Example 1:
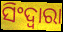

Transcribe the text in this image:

ସିଂଦ୍ୱାରା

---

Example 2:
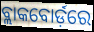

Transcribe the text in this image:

ବ୍ଲାକବୋର୍ଡ଼ରେ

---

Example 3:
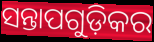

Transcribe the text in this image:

ସନ୍ତାପଗୁଡ଼ିକର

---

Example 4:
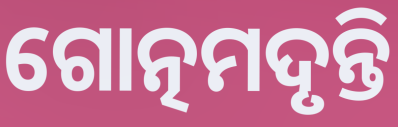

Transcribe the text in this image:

ଗୋତ୍ନମଦୃନ୍ତି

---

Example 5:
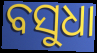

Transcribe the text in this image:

ବସୁଧା